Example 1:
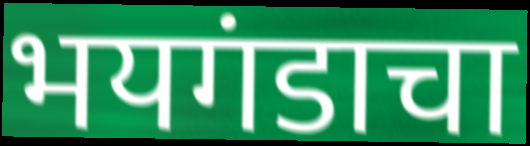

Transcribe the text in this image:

भयगंडाचा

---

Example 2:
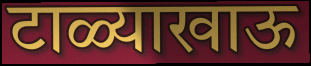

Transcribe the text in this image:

टाळ्याखाऊ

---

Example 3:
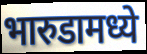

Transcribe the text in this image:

भारुडामध्ये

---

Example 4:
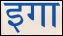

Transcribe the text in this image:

इगा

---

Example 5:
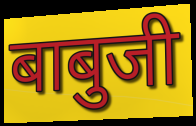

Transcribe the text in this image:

बाबुजी